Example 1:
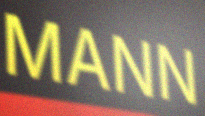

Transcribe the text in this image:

MANN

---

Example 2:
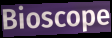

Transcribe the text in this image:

Bioscope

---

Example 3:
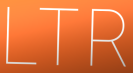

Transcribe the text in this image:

LTR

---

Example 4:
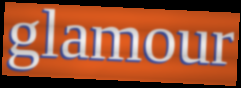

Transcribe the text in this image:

glamour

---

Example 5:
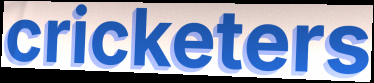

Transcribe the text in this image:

cricketers